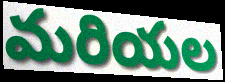
మరియల